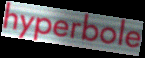
hyperbole